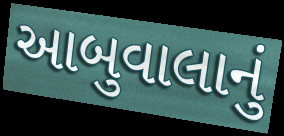
આબુવાલાનું